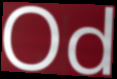
Od